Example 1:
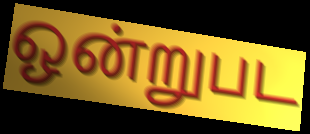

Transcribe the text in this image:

ஒன்றுபட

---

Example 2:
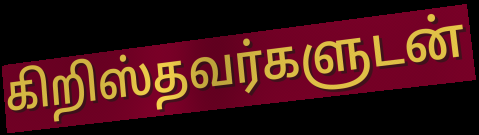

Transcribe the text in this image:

கிறிஸ்தவர்களுடன்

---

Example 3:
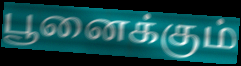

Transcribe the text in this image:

பூனைக்கும்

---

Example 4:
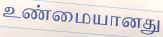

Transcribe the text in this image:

உண்மையானது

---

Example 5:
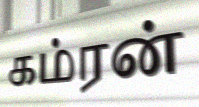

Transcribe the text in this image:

கம்ரன்